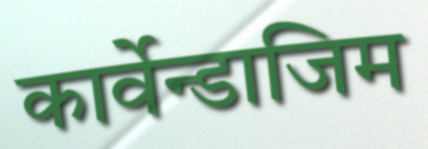
कार्वेन्डाजिम